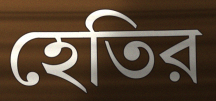
হেতির